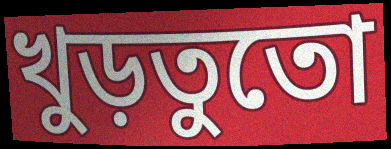
খুড়তুতো